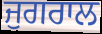
ਜੁਗਰਾਲ